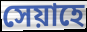
সেয়াহে